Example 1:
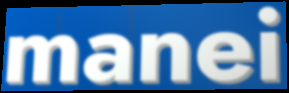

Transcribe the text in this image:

manei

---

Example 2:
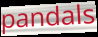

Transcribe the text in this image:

pandals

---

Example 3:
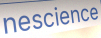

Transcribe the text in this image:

nescience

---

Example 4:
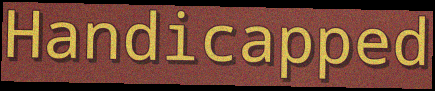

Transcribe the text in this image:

Handicapped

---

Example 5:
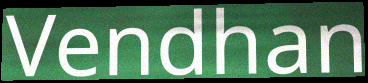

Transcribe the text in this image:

Vendhan